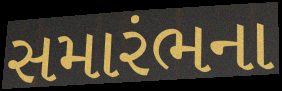
સમારંભના